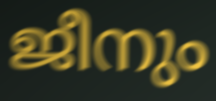
ജീനും